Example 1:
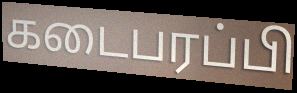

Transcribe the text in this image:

கடைபரப்பி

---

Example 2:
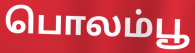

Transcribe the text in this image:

பொலம்பூ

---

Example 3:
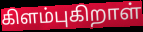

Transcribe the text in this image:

கிளம்புகிறாள்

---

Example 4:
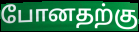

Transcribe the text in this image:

போனதற்கு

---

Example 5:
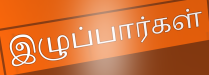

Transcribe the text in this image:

இழுப்பார்கள்